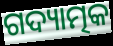
ଗଦ୍ୟାତ୍ମକ